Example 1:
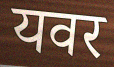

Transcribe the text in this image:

यवर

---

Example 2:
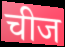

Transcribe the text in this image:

चीज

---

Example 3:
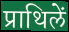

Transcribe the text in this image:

प्राथिलें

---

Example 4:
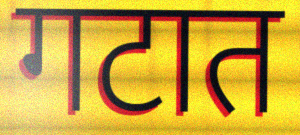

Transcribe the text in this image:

गटात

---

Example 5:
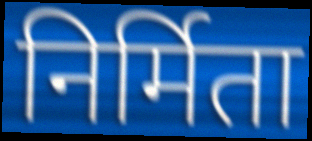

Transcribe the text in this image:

निर्मिता